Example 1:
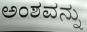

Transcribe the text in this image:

ಅಂಶವನ್ನು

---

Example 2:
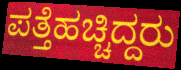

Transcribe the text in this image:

ಪತ್ತೆಹಚ್ಚಿದ್ದರು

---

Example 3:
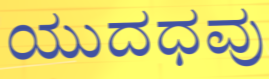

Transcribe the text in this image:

ಯುದಧವು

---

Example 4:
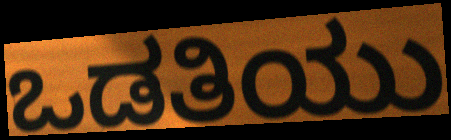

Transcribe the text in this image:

ಒಡತಿಯು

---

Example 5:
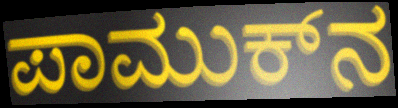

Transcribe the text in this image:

ಪಾಮುಕ್‍ನ